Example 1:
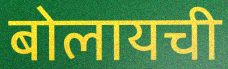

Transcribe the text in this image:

बोलायची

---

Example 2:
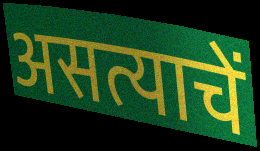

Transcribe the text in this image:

असत्याचें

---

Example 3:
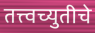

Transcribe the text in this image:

तत्त्वच्युतीचे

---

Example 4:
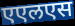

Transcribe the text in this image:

एएलएस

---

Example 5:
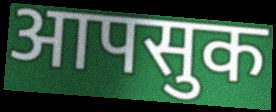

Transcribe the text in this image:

आपसुक